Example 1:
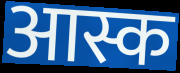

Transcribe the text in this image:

आस्क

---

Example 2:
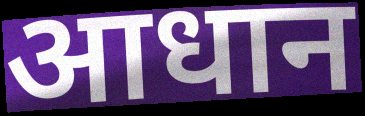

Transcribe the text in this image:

आधान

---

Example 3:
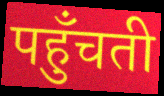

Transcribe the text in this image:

पहुँचती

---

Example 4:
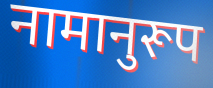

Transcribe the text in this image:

नामानुरूप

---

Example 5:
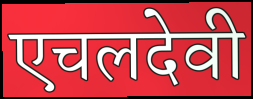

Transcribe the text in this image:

एचलदेवी